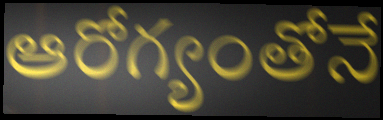
ఆరోగ్యంతోనే